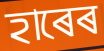
হাৰেৰ